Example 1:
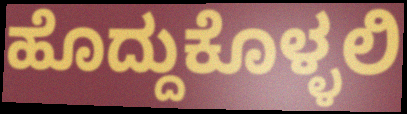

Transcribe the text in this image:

ಹೊದ್ದುಕೊಳ್ಳಲಿ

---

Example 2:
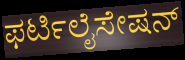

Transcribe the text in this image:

ಫರ್ಟಿಲೈಸೇಷನ್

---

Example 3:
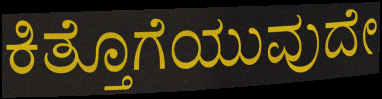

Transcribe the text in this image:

ಕಿತ್ತೊಗೆಯುವುದೇ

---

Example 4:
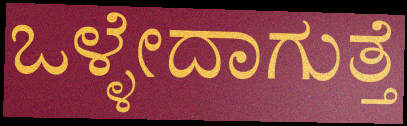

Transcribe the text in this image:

ಒಳ್ಳೇದಾಗುತ್ತೆ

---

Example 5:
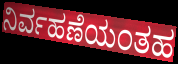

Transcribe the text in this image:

ನಿರ್ವಹಣೆಯಂತಹ